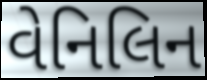
વેનિલિન